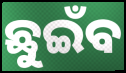
ଛୁଇଁବ